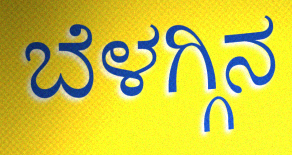
ಬೆಳಗ್ಗಿನ